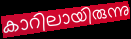
കാറിലായിരുന്നു